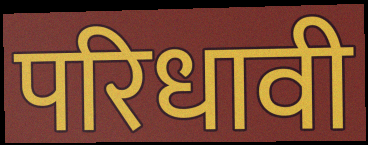
परिधावी